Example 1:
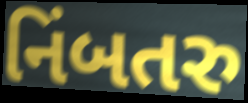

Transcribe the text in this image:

નિંબતરુ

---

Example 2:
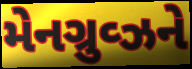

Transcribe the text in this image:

મેનગ્રુવ્ઝને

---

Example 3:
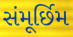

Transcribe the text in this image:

સંમૂર્છિમ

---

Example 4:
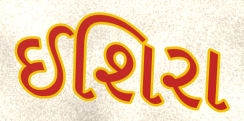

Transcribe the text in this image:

ઈશિરા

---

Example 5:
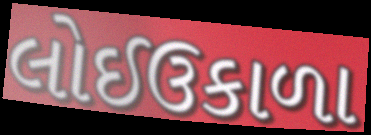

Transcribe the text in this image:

લોઈઉકાળા